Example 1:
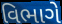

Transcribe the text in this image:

વિભાગે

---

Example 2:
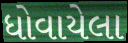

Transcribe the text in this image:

ધોવાયેલા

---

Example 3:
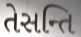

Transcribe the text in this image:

તેસન્તિ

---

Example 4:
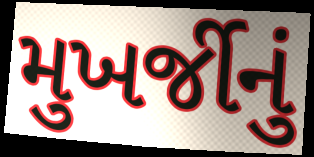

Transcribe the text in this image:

મુખર્જીનું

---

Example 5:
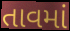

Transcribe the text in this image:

તાવમાં